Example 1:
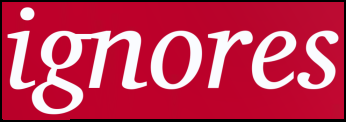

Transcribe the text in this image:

ignores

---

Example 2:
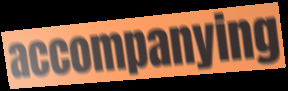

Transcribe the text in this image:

accompanying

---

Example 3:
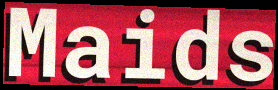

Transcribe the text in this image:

Maids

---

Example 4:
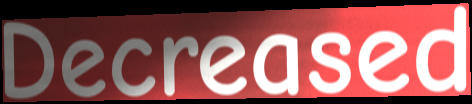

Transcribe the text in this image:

Decreased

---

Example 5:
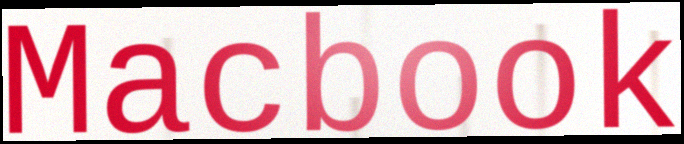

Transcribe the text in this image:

Macbook